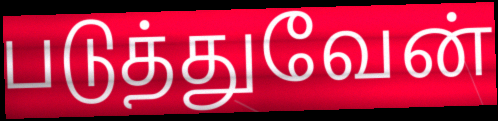
படுத்துவேன்